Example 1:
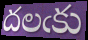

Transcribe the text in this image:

దలఁకు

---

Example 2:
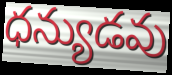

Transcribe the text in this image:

ధన్యుడవు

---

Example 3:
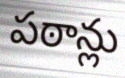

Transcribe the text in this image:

పఠాన్లు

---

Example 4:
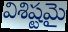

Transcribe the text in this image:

విశిష్టమై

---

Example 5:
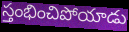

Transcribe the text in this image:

స్తంభించిపోయాడు